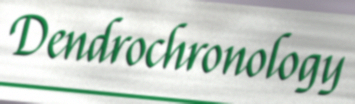
Dendrochronology